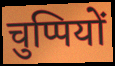
चुप्पियों